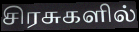
சிரசுகளில்